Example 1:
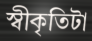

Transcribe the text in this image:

স্বীকৃতিটা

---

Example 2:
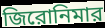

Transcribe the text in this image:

জিরোনিমার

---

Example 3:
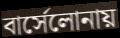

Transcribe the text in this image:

বার্সেলোনায়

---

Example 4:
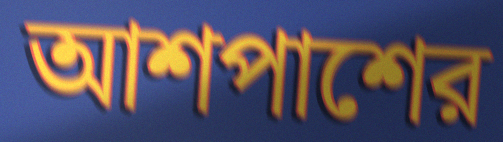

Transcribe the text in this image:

আশপাশের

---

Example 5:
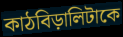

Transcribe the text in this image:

কাঠবিড়ালিটাকে